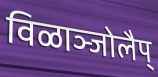
विळाञ्जोलैप्